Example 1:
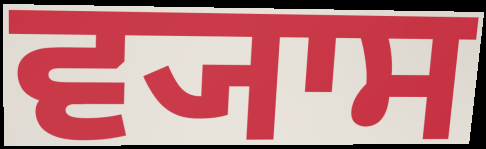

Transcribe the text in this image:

ਵ੍ਯਾਸ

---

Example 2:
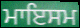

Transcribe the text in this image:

ਮਾਇਸਮ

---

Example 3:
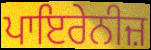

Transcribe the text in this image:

ਪਾਇਰੇਨੀਜ਼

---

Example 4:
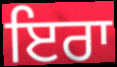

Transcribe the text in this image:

ਇਰਾ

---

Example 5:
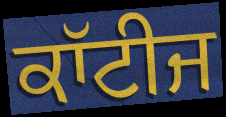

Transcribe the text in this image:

ਕਾੱਟੀਜ